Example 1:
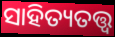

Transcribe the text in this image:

ସାହିତ୍ୟତତ୍ତ୍ୱ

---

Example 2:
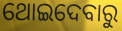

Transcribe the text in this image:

ଥୋଇଦେବାରୁ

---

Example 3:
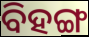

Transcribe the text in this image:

ବିହଙ୍ଗ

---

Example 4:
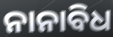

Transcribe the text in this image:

ନାନାବିଧ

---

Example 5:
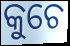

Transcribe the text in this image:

କୁଚେ